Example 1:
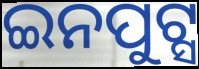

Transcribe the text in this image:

ଇନପୁଟ୍ସ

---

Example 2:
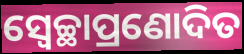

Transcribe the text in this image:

ସ୍ୱେଚ୍ଛାପ୍ରଣୋଦିତ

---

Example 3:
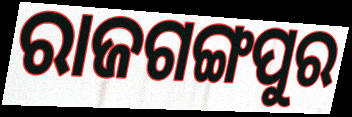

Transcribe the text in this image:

ରାଜଗଙ୍ଗପୁର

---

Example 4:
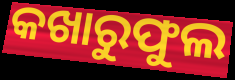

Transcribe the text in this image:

କଖାରୁଫୁଲ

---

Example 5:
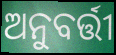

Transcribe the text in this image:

ଅନୁବର୍ତ୍ତୀ